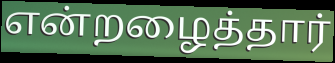
என்றழைத்தார்